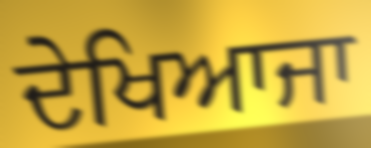
ਦੇਖਿਆਜਾ